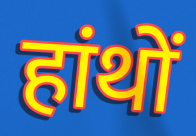
हांथों